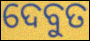
ଦେବୁତ